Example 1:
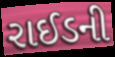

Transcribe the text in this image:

રાઈડની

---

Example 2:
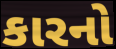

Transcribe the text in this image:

કારનો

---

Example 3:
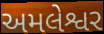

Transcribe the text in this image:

અમલેશ્વર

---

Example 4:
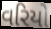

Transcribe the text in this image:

વરિયો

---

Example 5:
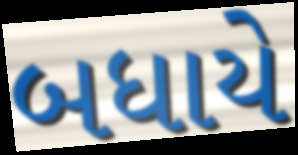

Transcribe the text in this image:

બધાયે